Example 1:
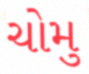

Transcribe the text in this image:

ચોમુ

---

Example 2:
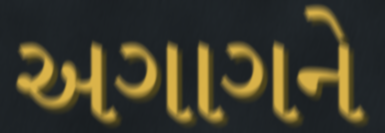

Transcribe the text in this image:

અગાગને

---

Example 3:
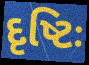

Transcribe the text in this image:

દૃષ્ટિઃ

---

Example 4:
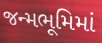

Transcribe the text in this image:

જન્મભૂમિમાં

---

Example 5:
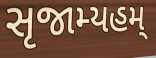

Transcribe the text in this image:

સૃજામ્યહમ્